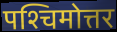
पश्चिमोत्तर